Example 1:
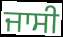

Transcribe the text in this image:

ਜਾਸੀ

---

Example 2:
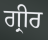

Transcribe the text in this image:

ਗ੍ਰੀਰ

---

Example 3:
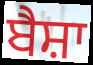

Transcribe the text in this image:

ਬੈਸ਼ਾ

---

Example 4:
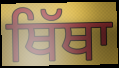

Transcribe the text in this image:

ਥਿੱਥਾ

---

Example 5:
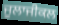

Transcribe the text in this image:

ਜੂਲਾਜੀਕਲ